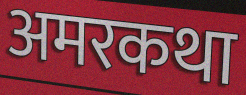
अमरकथा